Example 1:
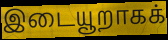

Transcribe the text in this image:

இடையூறாகக்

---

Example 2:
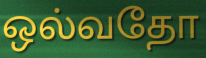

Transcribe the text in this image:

ஒல்வதோ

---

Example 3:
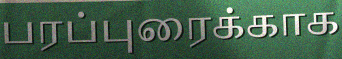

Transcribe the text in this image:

பரப்புரைக்காக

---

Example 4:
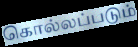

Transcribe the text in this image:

கொல்லப்படும்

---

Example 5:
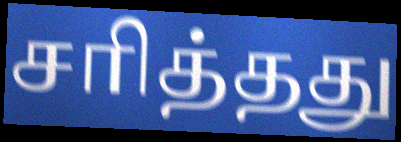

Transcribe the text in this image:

சரித்தது